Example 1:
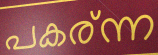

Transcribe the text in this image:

പകര്ന്ന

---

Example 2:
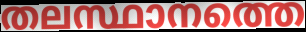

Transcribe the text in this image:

തലസ്ഥാനത്തെ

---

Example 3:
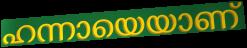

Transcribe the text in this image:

ഹന്നായെയാണ്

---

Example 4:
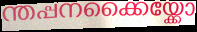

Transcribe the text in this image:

ന്തപ്പനക്കൈയ്ക്കോ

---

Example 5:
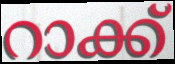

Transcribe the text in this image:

റാക്ക്